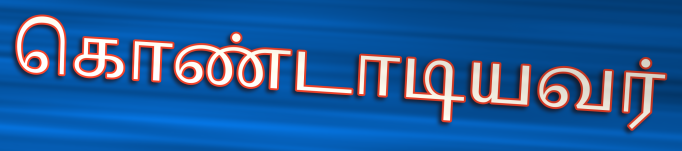
கொண்டாடியவர்